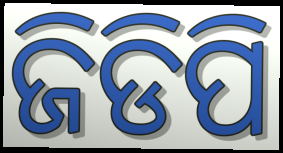
ଜିଡିପି